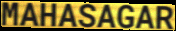
MAHASAGAR